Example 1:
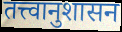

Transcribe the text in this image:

तत्त्वानुशासन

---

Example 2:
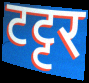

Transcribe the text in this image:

टट्टर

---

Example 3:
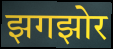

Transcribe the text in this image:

झगझोर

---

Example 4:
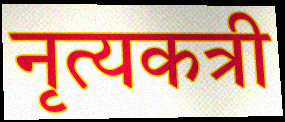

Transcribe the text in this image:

नृत्यकत्री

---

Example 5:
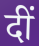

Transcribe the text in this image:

दीं